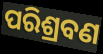
ପରିଶ୍ରବଣ